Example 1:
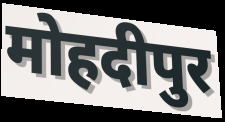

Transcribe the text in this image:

मोहदीपुर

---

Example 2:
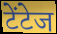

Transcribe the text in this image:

टेंटेज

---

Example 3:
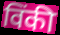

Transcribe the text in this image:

विंकी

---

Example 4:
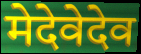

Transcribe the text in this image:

मेदेवेदेव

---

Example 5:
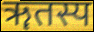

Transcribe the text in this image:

ॠतस्य